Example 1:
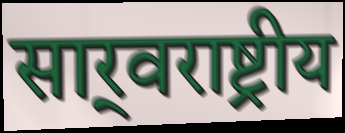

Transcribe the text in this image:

सार्वराष्ट्रीय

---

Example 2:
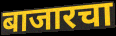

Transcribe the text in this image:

बाजारचा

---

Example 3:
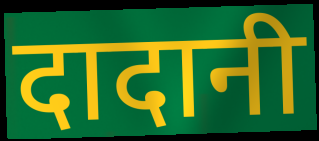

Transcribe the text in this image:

दादानी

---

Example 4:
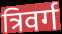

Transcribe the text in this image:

त्रिवर्ग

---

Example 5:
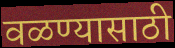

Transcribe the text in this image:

वळण्यासाठी